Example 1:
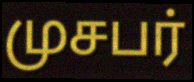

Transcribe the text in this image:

முசபர்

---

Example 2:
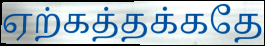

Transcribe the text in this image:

ஏற்கத்தக்கதே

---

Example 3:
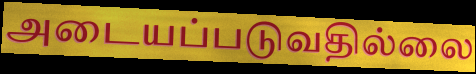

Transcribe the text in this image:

அடையப்படுவதில்லை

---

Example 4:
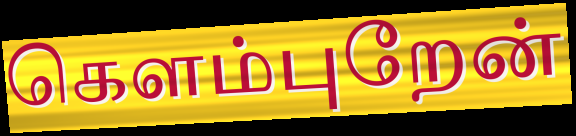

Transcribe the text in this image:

கெளம்புறேன்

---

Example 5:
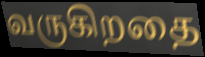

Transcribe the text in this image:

வருகிறதை